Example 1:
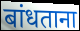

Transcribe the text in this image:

बांधताना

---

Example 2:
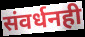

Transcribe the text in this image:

संवर्धनही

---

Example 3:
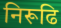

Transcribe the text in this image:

निरूढि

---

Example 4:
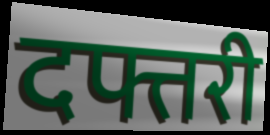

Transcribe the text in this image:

दफ्तरी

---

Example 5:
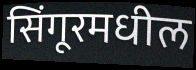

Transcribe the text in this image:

सिंगूरमधील